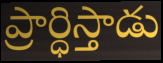
ప్రార్ధిస్తాడు